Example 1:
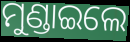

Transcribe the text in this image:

ମୁଣ୍ଡାଇଲେ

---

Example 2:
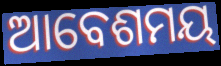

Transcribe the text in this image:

ଆବେଶମୟ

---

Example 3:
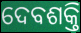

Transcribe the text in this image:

ଦେବଶକ୍ତି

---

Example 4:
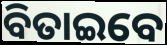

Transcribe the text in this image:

ବିତାଇବେ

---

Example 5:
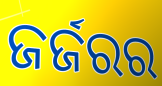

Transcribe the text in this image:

ଜର୍ଜରର